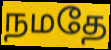
நமதே